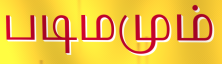
படிமமும்